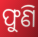
ଫୁଣି